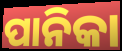
ପାନିକା